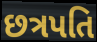
છત્રપતિ